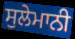
ਸੁਲੇਮਾਨੀ